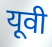
यूवी